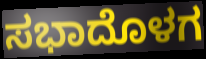
ಸಭಾದೊಳಗ